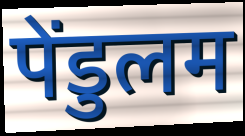
पेंडुलम